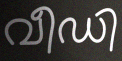
വീഡി